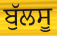
ਬੁੱਲਸੂ